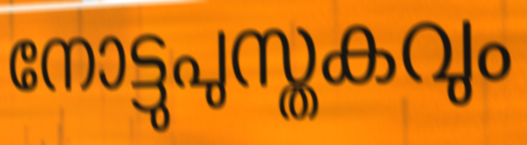
നോട്ടുപുസ്തകവും